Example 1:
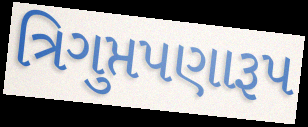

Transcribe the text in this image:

ત્રિગુપ્તપણારૂપ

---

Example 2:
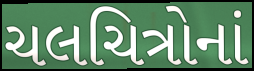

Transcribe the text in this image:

ચલચિત્રોનાં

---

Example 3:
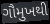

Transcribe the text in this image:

ગૌમુખથી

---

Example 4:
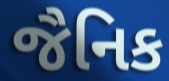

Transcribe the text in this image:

જૈનિક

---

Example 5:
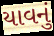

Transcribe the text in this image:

યાવનું